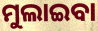
ମୁଲାଇବା